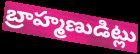
బ్రాహ్మణుడిట్లు